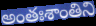
అంతఃశాంతిని